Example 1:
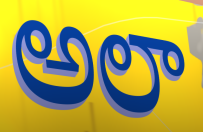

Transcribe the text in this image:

అలా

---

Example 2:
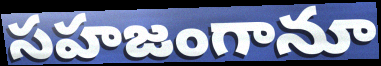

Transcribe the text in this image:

సహజంగానూ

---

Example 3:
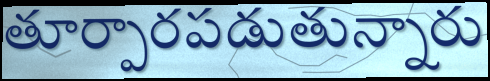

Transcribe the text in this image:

తూర్పారపడుతున్నారు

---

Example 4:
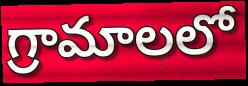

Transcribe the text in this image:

గ్రామాలలో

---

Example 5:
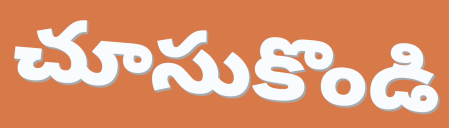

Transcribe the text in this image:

చూసుకొండి